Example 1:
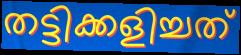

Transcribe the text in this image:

തട്ടിക്കളിച്ചത്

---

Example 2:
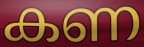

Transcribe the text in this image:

കണ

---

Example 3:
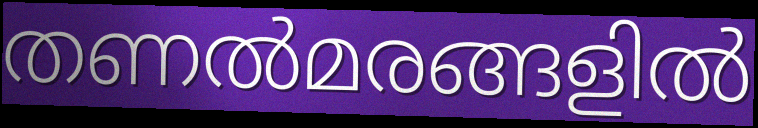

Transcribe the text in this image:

തണൽമരങ്ങളിൽ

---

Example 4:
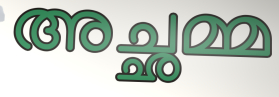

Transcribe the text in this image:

അച്ഛമ്മ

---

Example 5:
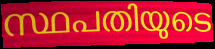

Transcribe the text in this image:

സ്ഥപതിയുടെ